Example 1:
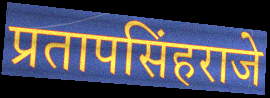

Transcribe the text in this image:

प्रतापसिंहराजे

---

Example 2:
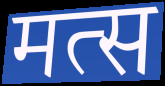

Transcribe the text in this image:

मत्स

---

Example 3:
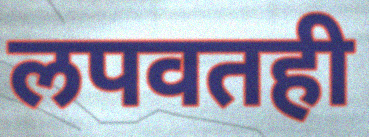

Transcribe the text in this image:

लपवतही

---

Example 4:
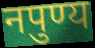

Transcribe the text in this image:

नपुण्य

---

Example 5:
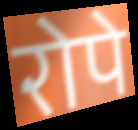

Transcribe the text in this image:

रोपे